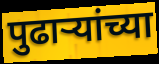
पुढाऱ्यांच्या